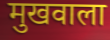
मुखवाला